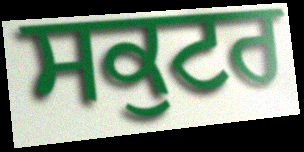
ਸਕੁਟਰ